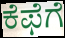
ಕೆಫೆಗೆ